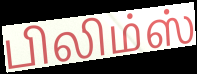
பிலிம்ஸ்